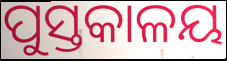
ପୁସ୍ତକାଳୟ